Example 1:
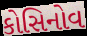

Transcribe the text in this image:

કોસિનોવ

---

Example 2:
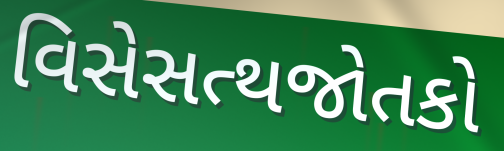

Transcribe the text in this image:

વિસેસત્થજોતકો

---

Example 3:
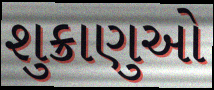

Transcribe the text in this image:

શુક્રાણુઓ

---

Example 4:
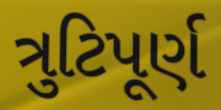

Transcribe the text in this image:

ત્રુટિપૂર્ણ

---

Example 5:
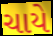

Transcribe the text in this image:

ચાયે